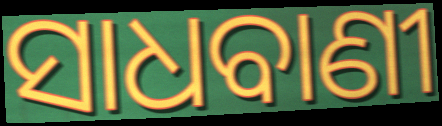
ସାଧବାଣୀ